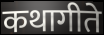
कथागीते